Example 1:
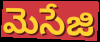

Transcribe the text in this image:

మెసేజి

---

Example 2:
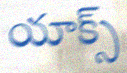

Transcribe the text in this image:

యాక్స్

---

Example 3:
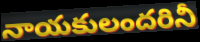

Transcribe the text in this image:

నాయకులందరినీ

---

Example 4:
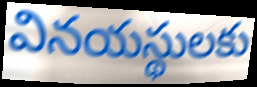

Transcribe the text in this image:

వినయస్థులకు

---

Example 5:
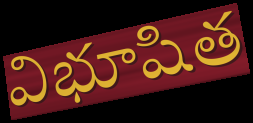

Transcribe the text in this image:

విభూషిత